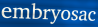
embryosac